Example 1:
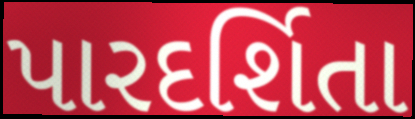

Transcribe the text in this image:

પારદર્શિતા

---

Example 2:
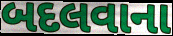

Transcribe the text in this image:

બદલવાના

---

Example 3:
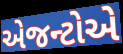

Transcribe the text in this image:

એજન્ટોએ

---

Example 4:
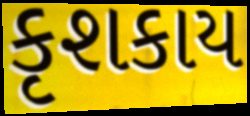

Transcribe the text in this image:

કૃશકાય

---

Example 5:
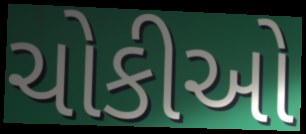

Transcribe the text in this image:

ચોકીઓ